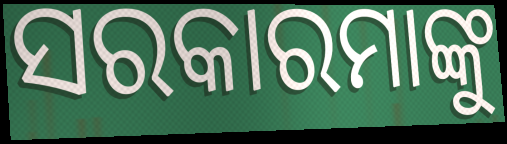
ସରକାରମାଙ୍କୁ